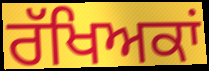
ਰੱਖਿਅਕਾਂ